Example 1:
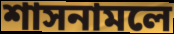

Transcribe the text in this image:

শাসনামলে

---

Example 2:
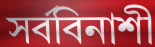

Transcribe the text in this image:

সর্ববিনাশী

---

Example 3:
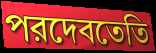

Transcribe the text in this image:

পরদেবতেতি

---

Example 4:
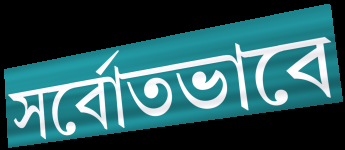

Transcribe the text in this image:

সর্বোতভাবে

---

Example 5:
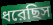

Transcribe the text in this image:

ধরেছিস